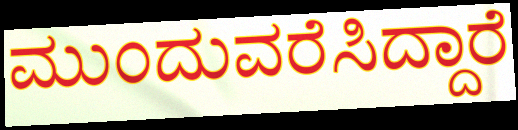
ಮುಂದುವರೆಸಿದ್ದಾರೆ